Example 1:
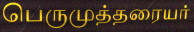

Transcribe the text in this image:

பெருமுத்தரையர்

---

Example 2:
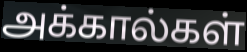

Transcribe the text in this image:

அக்கால்கள்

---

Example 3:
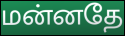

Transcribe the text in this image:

மன்னதே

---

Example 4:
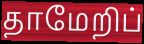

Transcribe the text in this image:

தாமேறிப்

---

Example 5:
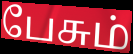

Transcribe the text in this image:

பேசும்